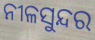
ନୀଳସୁନ୍ଦର